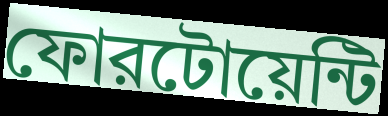
ফোরটোয়েন্টি